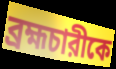
ব্রহ্মচারীকে